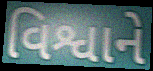
વિશ્વાને